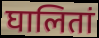
घालितां